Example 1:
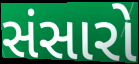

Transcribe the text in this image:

સંસારો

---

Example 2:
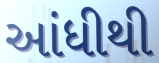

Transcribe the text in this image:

આંધીથી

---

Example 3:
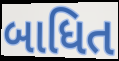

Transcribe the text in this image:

બાધિત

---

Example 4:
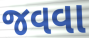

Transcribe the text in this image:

જવવા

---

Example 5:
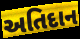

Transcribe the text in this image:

અતિદાન